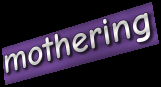
mothering